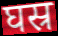
घस्र